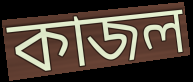
কাজল